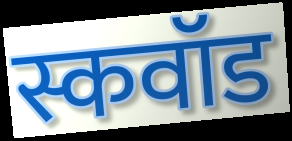
स्कवॉड